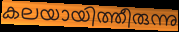
കലയായിത്തീരുന്നു